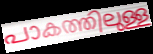
പാകത്തിലുള്ള